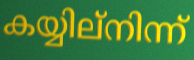
കയ്യില്നിന്ന്